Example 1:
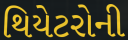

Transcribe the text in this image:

થિયેટરોની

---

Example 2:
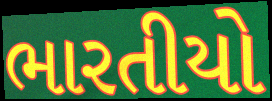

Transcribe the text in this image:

ભારતીયો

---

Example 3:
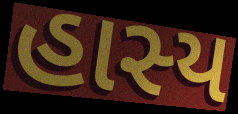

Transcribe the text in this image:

હાસ્ય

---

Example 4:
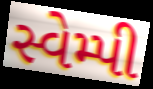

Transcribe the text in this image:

સ્વેમ્પી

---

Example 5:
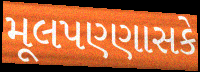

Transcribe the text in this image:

મૂલપણ્ણાસકે